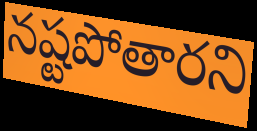
నష్టపోతారని